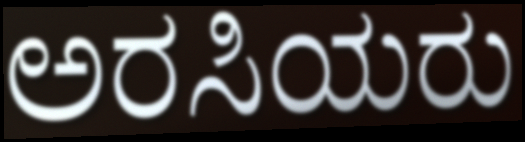
ಅರಸಿಯರು